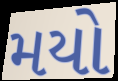
મયો